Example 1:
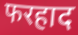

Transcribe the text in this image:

फरहाद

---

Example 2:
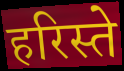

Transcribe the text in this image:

हरिस्ते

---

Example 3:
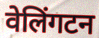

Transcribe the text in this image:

वेलिंगटन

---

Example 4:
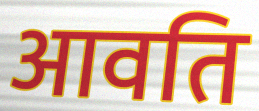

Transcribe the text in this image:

आवति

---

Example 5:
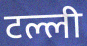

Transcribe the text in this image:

टल्ली